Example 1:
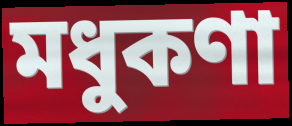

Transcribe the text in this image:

মধুকণা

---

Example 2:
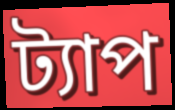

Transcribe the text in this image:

ট্যাপ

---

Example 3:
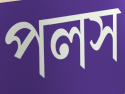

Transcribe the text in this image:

পলস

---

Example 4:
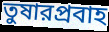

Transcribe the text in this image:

তুষারপ্রবাহ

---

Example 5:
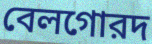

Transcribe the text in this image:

বেলগোরদ